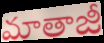
మాతాజీ